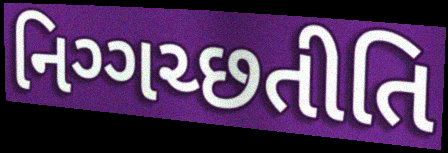
નિગ્ગચ્છતીતિ